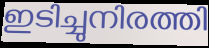
ഇടിച്ചുനിരത്തി